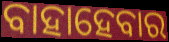
ବାହାହେବାର